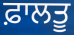
ਫ਼ਾਲਤੂ